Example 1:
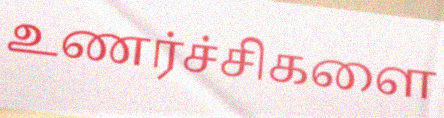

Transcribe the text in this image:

உணர்ச்சிகளை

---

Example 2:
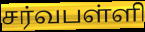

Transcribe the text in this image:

சர்வபள்ளி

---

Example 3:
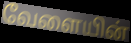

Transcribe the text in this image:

வேளையின்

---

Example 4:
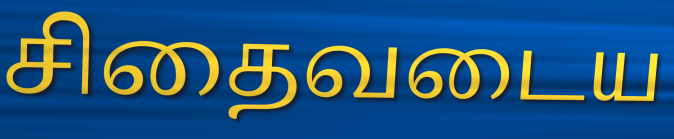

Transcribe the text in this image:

சிதைவடைய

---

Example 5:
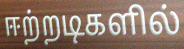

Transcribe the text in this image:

ஈற்றடிகளில்